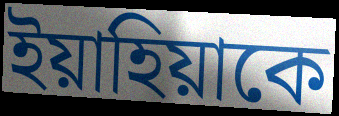
ইয়াহিয়াকে